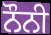
ਨੌਨੀ